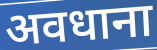
अवधाना